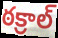
ఠక్రాల్